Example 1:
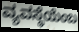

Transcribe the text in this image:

ವ್ಯವಸ್ಥೆಯೆಂಬ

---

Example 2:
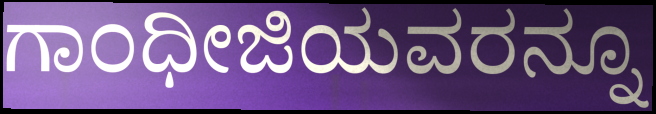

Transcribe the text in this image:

ಗಾಂಧೀಜಿಯವರನ್ನೂ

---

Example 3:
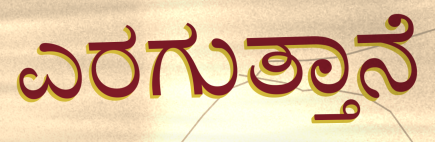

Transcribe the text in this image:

ಎರಗುತ್ತಾನೆ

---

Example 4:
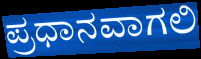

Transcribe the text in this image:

ಪ್ರಧಾನವಾಗಲಿ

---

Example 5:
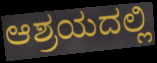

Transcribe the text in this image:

ಆಶ್ರಯದಲ್ಲಿ